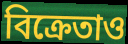
বিক্রেতাও